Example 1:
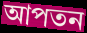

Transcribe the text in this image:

আপতন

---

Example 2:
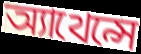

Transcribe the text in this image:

অ্যাথেন্সে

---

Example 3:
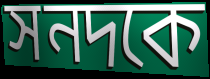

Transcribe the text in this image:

সনদকে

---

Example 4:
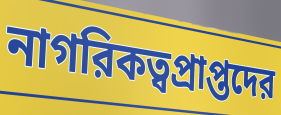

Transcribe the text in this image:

নাগরিকত্বপ্রাপ্তদের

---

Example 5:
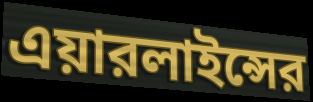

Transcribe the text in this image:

এয়ারলাইন্সের